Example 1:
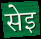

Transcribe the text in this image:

सेइ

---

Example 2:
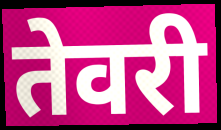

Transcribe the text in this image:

तेवरी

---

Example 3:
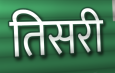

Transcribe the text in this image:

तिसरी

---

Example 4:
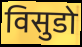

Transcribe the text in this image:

विसुडो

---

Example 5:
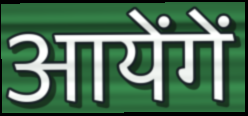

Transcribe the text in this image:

आयेंगें